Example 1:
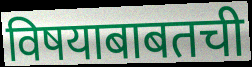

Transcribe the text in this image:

विषयाबाबतची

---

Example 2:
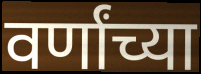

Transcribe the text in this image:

वर्णांच्या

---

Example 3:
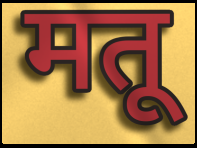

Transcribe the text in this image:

मतू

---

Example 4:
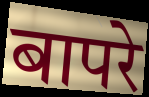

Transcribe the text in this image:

बापरे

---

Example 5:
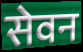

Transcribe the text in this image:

सेवन